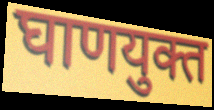
घाणयुक्त